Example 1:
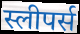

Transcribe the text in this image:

स्लीपर्स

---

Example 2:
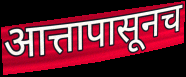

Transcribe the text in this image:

आत्तापासूनच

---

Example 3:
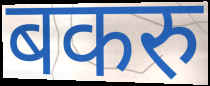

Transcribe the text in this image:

बकरु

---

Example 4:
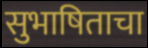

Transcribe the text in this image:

सुभाषिताचा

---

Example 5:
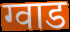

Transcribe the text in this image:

ग्वाड